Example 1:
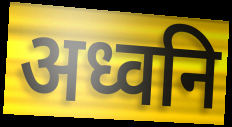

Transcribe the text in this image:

अध्वनि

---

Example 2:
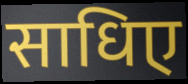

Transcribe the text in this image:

साधिए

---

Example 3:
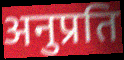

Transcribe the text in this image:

अनुप्रति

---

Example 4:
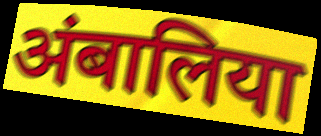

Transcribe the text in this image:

अंबालिया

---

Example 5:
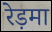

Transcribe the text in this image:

रेड़मा